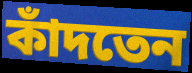
কাঁদতেন